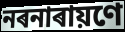
নৰনাৰায়ণে